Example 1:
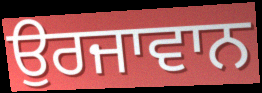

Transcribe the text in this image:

ਉਰਜਾਵਾਨ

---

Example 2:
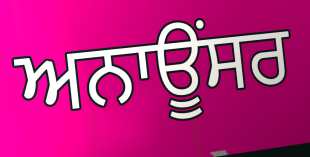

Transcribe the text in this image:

ਅਨਾਊਂਸਰ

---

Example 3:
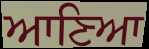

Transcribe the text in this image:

ਆਣਿਆ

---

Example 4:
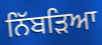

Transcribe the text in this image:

ਨਿੱਬੜਿਆ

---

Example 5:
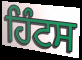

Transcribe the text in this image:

ਹਿੰਟਸ